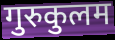
गुरुकुलम